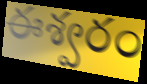
ఈశ్వరం